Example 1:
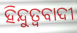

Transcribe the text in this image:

ହିନ୍ଦୁତ୍ୱବାଦୀ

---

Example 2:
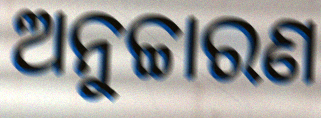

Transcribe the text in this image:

ଅନୁଚ୍ଚାରଣ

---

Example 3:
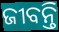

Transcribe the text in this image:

ଜୀବନ୍ତି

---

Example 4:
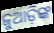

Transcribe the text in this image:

ଜୁଆଡ଼ିଙ୍କ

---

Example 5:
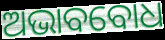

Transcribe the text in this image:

ଅଭାବବୋଧ